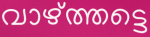
വാഴ്ത്തട്ടെ